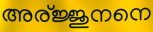
അര്ജ്ജുനനെ